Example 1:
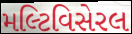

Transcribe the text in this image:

મલ્ટિવિસેરલ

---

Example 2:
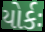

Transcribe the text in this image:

યોર્કઃ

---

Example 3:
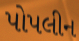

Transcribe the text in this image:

પોપલીન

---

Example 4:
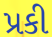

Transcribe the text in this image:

પ્રકી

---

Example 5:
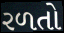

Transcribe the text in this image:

રળતો